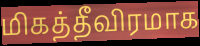
மிகத்தீவிரமாக